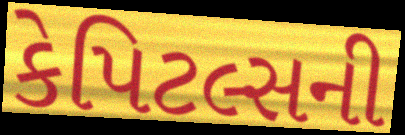
કેપિટલ્સની